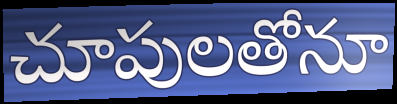
చూపులతోనూ